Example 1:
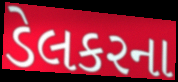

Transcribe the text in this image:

ડેલકરના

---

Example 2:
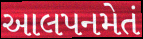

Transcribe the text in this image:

આલપનમેતં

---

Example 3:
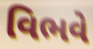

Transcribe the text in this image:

વિભવે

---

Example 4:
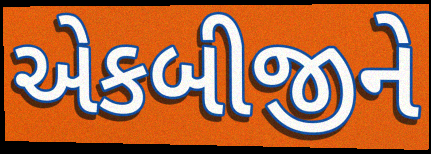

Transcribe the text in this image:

એકબીજીને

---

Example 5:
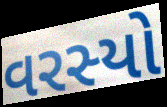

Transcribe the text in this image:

વરસ્યો